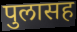
पुलासह